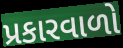
પ્રકારવાળો